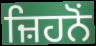
ਜ਼ਿਹਨੋਂ